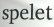
spelet